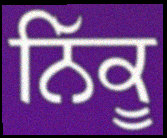
ਨਿੱਕੂ